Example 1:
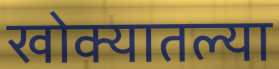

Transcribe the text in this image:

खोक्यातल्या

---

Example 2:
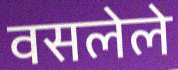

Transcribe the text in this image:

वसलेले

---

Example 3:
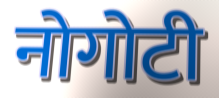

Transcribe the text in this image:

नोगोटी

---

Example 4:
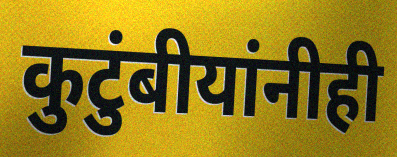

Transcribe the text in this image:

कुटुंबीयांनीही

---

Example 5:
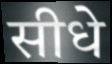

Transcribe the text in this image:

सीधे